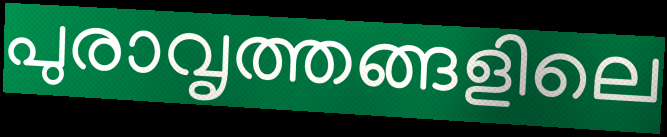
പുരാവൃത്തങ്ങളിലെ